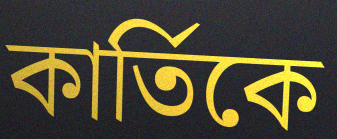
কাৰ্তিকে